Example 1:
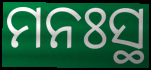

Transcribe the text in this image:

ମନଃସ୍ଥ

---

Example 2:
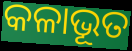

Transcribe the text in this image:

କଳାଭୂତ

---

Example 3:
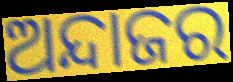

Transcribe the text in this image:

ଅନ୍ଦାଜର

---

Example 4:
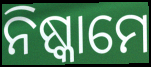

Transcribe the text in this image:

ନିଷ୍କାମେ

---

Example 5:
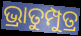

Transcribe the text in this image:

ଭ୍ରାତୁମ୍ପୁତ୍ର